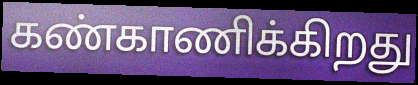
கண்காணிக்கிறது